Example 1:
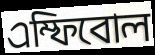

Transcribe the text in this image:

এম্ফিবোল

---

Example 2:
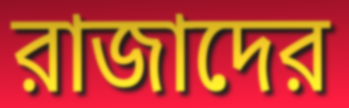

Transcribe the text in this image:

রাজাদের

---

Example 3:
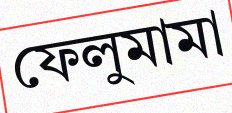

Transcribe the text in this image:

ফেলুমামা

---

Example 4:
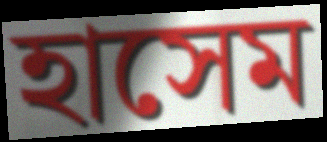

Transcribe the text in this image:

হাসেম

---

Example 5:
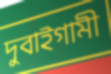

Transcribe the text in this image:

দুবাইগামী